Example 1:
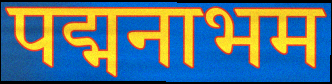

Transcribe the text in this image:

पद्मनाभम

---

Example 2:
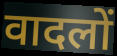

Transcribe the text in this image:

वादलों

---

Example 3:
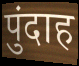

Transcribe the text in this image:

पुंदाह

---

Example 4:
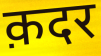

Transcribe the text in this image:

क़दर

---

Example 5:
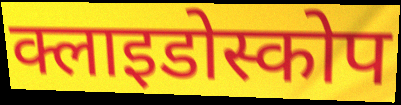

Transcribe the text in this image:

क्लाइडोस्कोप